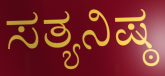
ಸತ್ಯನಿಷ್ಠ